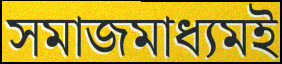
সমাজমাধ্যমই